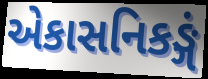
એકાસનિકઙ્ગં